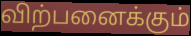
விற்பனைக்கும்